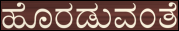
ಹೊರಡುವಂತೆ